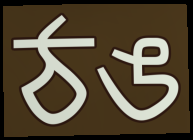
ঠঙ